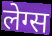
लेग्स